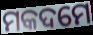
ମକଦମେ